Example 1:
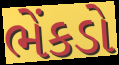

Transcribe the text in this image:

ભેંકડો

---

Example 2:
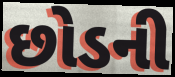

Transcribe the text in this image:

છોડની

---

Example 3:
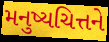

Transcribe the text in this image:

મનુષ્યચિત્તને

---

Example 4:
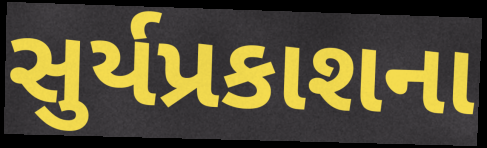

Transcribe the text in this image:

સુર્યપ્રકાશના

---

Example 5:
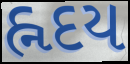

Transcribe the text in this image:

હ્નદય